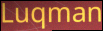
Luqman